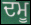
ਦਮੂ